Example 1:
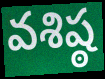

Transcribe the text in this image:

వశిష్ఠ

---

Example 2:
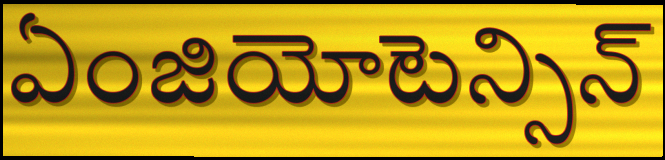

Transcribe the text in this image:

ఏంజియోటెన్సిన్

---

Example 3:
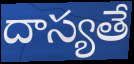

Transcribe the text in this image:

దాస్యతే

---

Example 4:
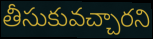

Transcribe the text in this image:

తీసుకువచ్చారని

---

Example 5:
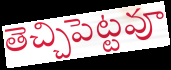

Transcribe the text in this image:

తెచ్చిపెట్టవూ